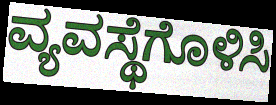
ವ್ಯವಸ್ಥೆಗೊಳಿಸಿ